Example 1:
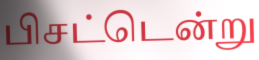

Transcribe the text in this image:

பிசட்டென்று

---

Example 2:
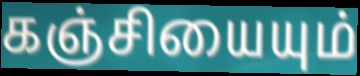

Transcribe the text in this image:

கஞ்சியையும்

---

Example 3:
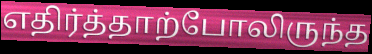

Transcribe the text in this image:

எதிர்த்தாற்போலிருந்த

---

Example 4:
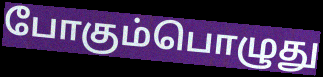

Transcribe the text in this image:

போகும்பொழுது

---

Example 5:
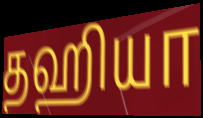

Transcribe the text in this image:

தஹியா